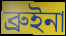
ব্রুইনা